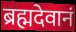
ब्रह्मदेवानं